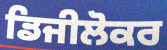
ਡਿਜੀਲੋਕਰ